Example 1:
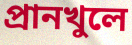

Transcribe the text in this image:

প্রানখুলে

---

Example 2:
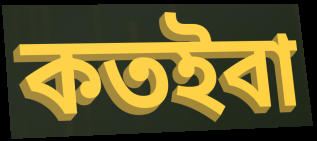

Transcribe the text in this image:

কতইবা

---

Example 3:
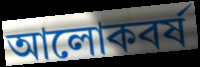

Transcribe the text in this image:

আলোকবর্ষ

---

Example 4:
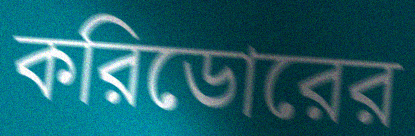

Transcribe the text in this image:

করিডোরের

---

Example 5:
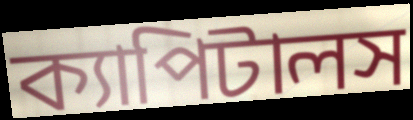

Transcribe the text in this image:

ক্যাপিটালস